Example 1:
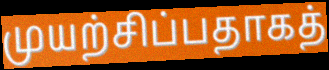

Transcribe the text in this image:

முயற்சிப்பதாகத்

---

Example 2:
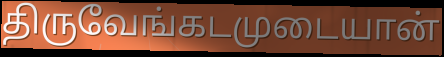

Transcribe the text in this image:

திருவேங்கடமுடையான்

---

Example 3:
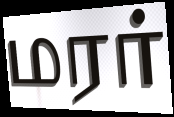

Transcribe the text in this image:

மரர்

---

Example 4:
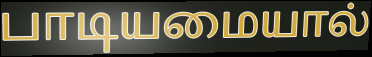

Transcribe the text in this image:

பாடியமையால்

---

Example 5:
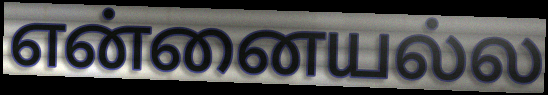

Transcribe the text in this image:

என்னையல்ல